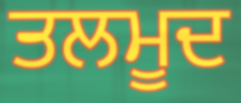
ਤਲਮੂਦ